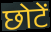
छोटें